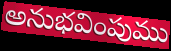
అనుభవింపుము